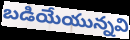
బడియేయున్నవి